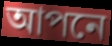
আপনে